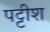
पट्टीश